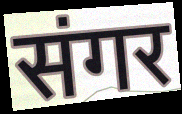
संगर